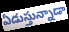
ఏడుస్తున్నాడా